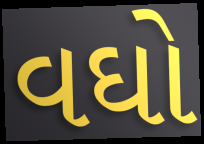
વઘો